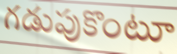
గడుపుకొంటూ